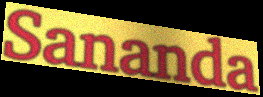
Sananda